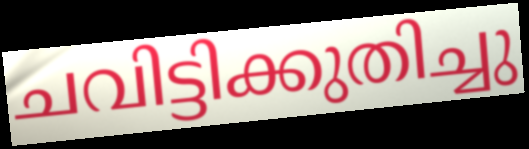
ചവിട്ടിക്കുതിച്ചു